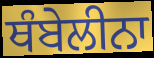
ਥੰਬੇਲੀਨਾ